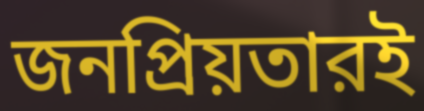
জনপ্রিয়তারই